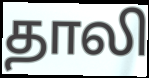
தாலி